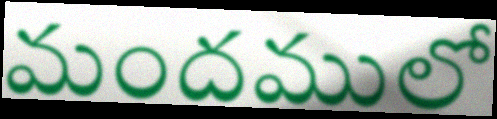
మందములో